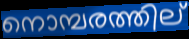
നൊമ്പരത്തില്